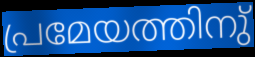
പ്രമേയത്തിനു്